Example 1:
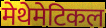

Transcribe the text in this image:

मेथेमेटिकल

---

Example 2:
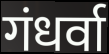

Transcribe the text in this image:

गंधर्वा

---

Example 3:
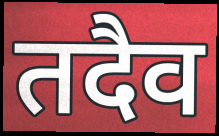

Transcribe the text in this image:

तदैव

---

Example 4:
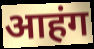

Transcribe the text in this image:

आहंग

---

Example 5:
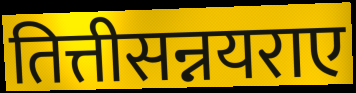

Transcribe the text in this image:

तित्तीसन्नयराए